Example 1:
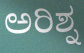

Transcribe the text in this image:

ಅರಿಶ್ನ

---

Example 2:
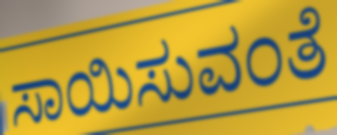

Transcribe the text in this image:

ಸಾಯಿಸುವಂತೆ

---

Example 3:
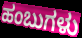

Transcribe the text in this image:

ಹಂಬುಗಳು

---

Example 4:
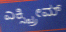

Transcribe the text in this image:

ಎಕ್ಸ್ಟ್ರೀಮ್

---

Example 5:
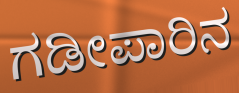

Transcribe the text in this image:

ಗಡೀಪಾರಿನ